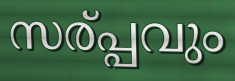
സര്പ്പവും